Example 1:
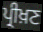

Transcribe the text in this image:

ਪ੍ਰੀਖ਼ਣ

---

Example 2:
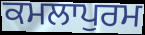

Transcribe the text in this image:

ਕਮਲਾਪੁਰਮ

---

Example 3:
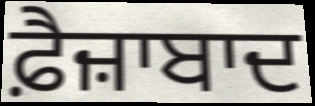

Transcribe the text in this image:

ਫ਼ੈਜ਼ਾਬਾਦ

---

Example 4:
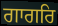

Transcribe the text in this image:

ਗਾਗਰਿ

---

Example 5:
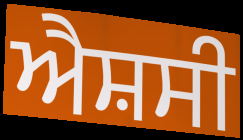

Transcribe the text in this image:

ਐਸ਼ਸੀ